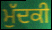
ਮੁੱਦਕੀ